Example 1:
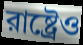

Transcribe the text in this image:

রাষ্ট্রেও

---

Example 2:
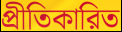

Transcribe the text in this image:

প্রীতিকারিত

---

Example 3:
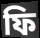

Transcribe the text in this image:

ফি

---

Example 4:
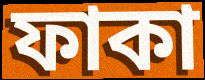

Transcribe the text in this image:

ফাকা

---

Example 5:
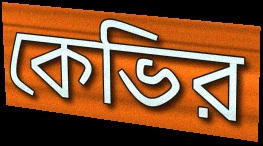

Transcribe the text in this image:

কেভির